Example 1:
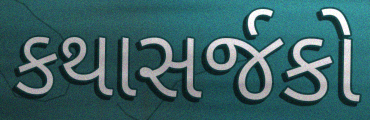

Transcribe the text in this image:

કથાસર્જકો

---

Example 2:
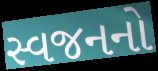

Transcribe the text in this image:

સ્વજનનો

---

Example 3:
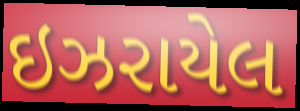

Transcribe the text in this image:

ઇઝરાયેલ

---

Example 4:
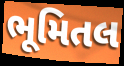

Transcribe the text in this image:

ભૂમિતલ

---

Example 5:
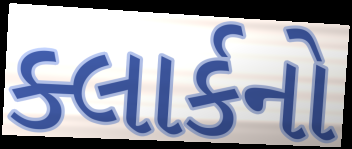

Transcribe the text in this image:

ક્લાર્કનો